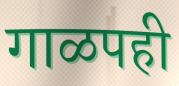
गाळपही